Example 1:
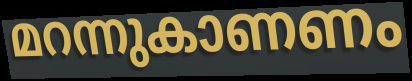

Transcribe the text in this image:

മറന്നുകാണണം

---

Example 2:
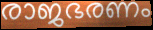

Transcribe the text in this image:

രാജഭരണം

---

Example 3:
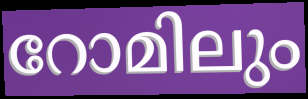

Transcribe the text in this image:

റോമിലും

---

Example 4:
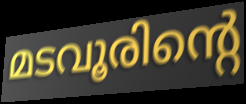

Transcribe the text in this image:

മടവൂരിന്റെ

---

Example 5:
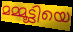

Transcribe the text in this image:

മമ്മൂട്ടിയെ